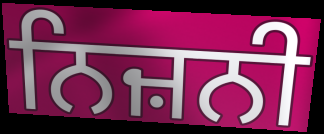
ਨਿਜ਼ਨੀ